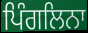
ਪਿੰਗਲਿਨਾ